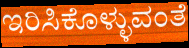
ಇರಿಸಿಕೊಳ್ಳುವಂತೆ